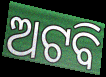
ଅଟବି